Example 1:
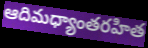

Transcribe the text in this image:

ఆదిమధ్యాంతరహిత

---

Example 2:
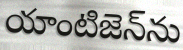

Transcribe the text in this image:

యాంటిజెన్‌ను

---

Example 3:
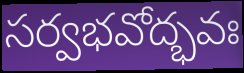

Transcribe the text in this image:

సర్వభవోద్భవః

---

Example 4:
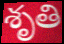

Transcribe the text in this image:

శృతి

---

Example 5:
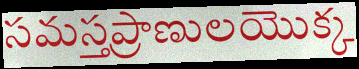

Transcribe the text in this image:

సమస్తప్రాణులయొక్క